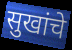
सुखांचे